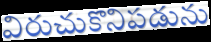
విరుచుకొనిపడును